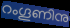
റംഗൂണിനു